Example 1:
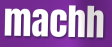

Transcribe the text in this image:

machh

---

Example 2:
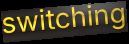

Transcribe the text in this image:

switching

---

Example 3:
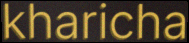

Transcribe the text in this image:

kharicha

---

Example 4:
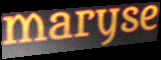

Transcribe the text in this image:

maryse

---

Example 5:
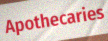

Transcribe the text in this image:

Apothecaries